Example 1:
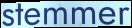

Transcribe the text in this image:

stemmer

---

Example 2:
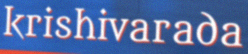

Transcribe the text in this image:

krishivarada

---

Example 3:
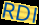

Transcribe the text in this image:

RDI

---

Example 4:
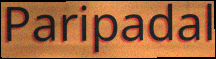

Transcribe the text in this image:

Paripadal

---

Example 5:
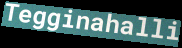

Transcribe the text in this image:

Tegginahalli